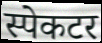
स्पेकटर